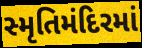
સ્મૃતિમંદિરમાં